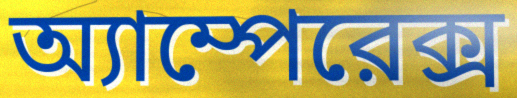
অ্যাম্পেরেক্স